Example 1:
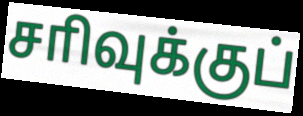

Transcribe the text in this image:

சரிவுக்குப்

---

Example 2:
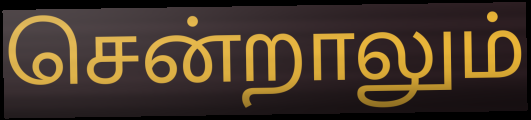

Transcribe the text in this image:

சென்றாலும்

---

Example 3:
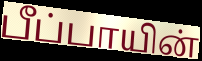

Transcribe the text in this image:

பீப்பாயின்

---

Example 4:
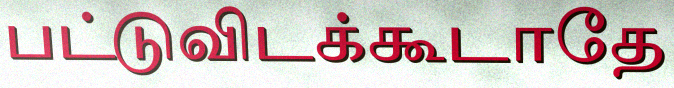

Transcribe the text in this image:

பட்டுவிடக்கூடாதே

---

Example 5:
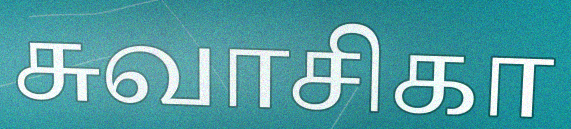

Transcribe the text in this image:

சுவாசிகா